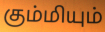
கும்மியும்